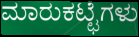
ಮಾರುಕಟ್ಟೆಗಳು